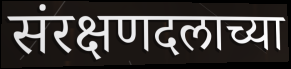
संरक्षणदलाच्या